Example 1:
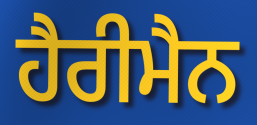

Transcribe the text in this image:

ਹੈਰੀਮੈਨ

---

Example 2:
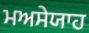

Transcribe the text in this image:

ਮਅਸੇਯਾਹ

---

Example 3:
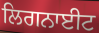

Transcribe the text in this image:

ਲਿਗਨਾਈਟ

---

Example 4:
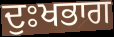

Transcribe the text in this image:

ਦੁਃਖਭਾਗ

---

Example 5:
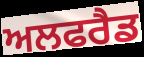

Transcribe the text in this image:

ਅਲਫਰੈਡ